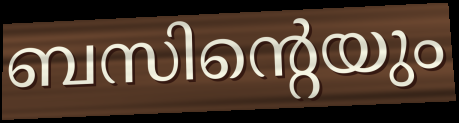
ബസിന്റെയും